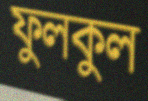
ফুলকুল